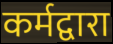
कर्मद्वारा